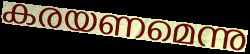
കരയണമെന്നു